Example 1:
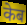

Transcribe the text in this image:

केब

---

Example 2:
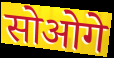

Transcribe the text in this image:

सोओगे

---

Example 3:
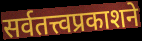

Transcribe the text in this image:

सर्वतत्त्वप्रकाशने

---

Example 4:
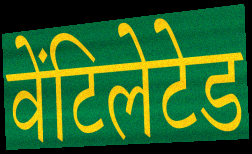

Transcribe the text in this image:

वेंटिलेटेड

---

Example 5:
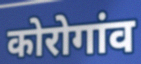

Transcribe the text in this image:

कोरोगांव